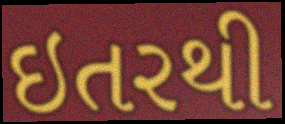
ઇતરથી